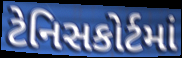
ટેનિસકોર્ટમાં